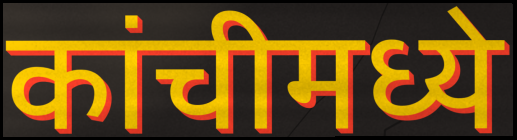
कांचीमध्ये